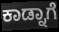
ಕಾಡ್ನಾಗೆ